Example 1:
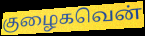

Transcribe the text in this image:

குழைகவென்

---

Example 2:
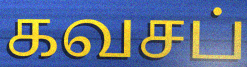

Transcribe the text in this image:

கவசப்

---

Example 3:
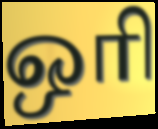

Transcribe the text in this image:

ஒரி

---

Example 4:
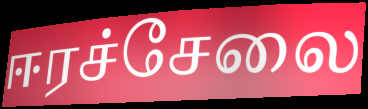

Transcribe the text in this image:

ஈரச்சேலை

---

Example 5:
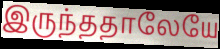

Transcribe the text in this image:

இருந்ததாலேயே